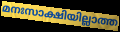
മനഃസാക്ഷിയില്ലാത്ത